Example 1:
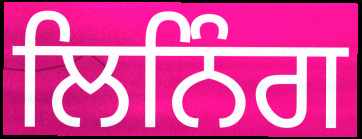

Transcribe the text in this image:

ਲਿਨਿੰਗ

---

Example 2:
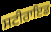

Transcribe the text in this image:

ਸਟੀਰਾਇਡ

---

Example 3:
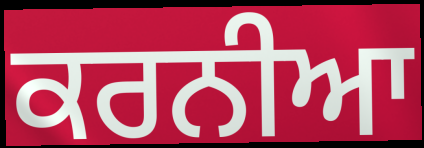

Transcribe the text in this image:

ਕਰਨੀਆ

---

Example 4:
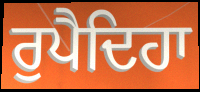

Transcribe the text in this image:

ਰੁਪੈਦਿਹਾ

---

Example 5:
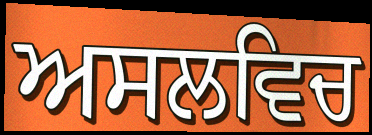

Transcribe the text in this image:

ਅਸਲਵਿਚ